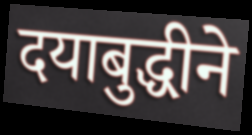
दयाबुद्धीने